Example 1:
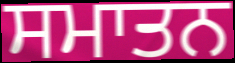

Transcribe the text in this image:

ਸਮਾਤਨ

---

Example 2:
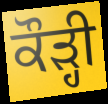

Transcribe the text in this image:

ਕੌੜ੍ਹੀ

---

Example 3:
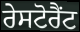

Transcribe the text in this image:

ਰੇਸਟੋਰੈਂਟ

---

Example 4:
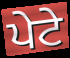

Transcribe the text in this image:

ਪੇਟੇ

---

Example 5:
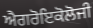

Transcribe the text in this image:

ਐਗਰੋਇਕੋਲੋਜੀ